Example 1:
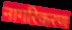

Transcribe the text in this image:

नागरिकरण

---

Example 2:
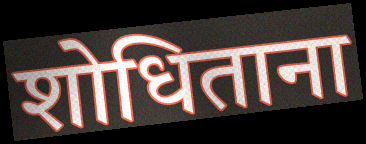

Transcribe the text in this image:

शोधिताना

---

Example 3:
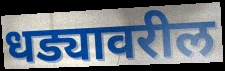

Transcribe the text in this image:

धड्यावरील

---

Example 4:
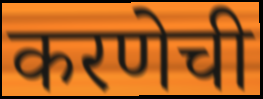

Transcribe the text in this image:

करणेची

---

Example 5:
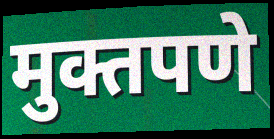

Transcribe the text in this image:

मुक्तपणे